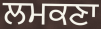
ਲਮਕਣਾ